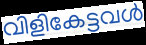
വിളികേട്ടവൾ